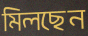
মিলছেন